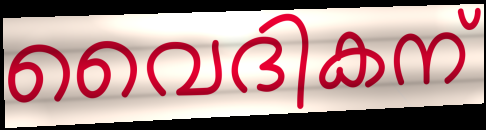
വൈദികന്